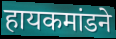
हायकमांडने